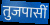
तुजपासीं